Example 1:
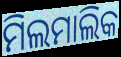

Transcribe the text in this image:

ମିଲମାଲିକ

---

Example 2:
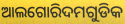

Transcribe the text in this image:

ଆଲଗୋରିଦମଗୁଡିକ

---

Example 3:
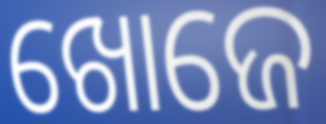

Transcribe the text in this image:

ଖୋଜେ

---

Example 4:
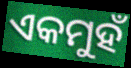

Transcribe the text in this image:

ଏକମୁହଁ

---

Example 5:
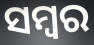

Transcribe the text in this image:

ସମ୍ବର